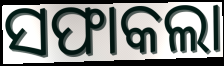
ସଫାକଲା